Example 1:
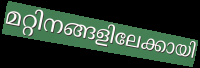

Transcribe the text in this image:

മറ്റിനങ്ങളിലേക്കായി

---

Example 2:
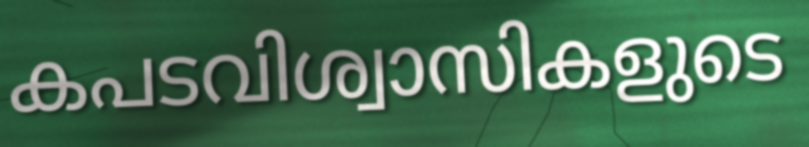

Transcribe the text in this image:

കപടവിശ്വാസികളുടെ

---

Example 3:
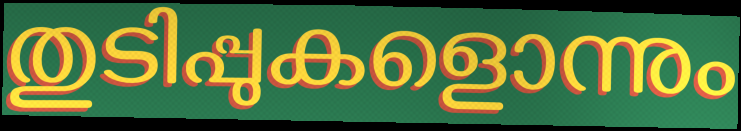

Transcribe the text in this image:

തുടിപ്പുകളൊന്നും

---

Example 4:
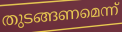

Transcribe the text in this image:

തുടങ്ങണമെന്ന്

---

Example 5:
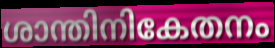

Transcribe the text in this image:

ശാന്തിനികേതനം